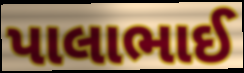
પાલાભાઈ